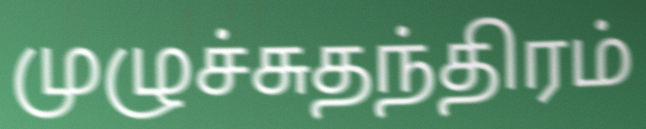
முழுச்சுதந்திரம்